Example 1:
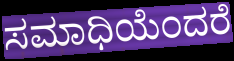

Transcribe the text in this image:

ಸಮಾಧಿಯೆಂದರೆ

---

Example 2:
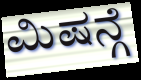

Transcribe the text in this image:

ಮಿಷನ್ಗೆ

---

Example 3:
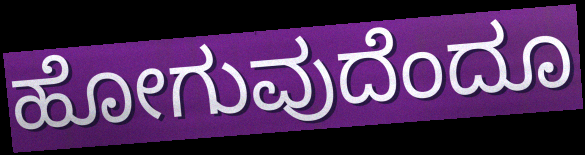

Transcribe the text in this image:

ಹೋಗುವುದೆಂದೂ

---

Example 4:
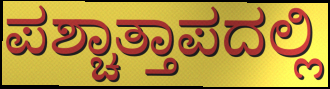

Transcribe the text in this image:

ಪಶ್ಚಾತ್ತಾಪದಲ್ಲಿ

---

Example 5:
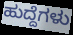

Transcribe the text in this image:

ಹುದ್ದೆಗಳು